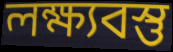
লক্ষ্যবস্তু